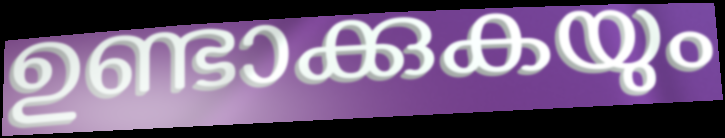
ഉണ്ടാക്കുകയും